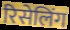
रिसेलिंग